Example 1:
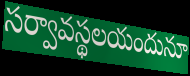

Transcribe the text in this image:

సర్వావస్థలయందునూ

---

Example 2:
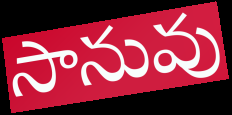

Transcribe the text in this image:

సానువు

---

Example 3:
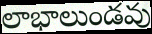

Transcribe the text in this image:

లాభాలుండవు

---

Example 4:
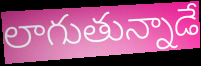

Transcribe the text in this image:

లాగుతున్నాడే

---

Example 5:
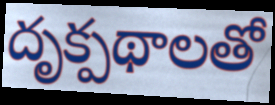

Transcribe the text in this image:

దృక్పథాలతో